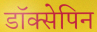
डॉक्सेपिन